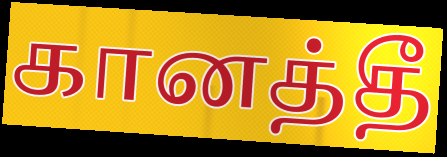
கானத்தீ